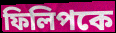
ফিলিপকে